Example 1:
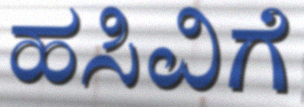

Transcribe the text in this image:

ಹಸಿವಿಗೆ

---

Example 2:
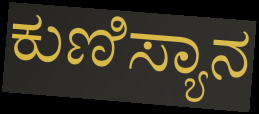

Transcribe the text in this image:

ಕುಣಿಸ್ಯಾನ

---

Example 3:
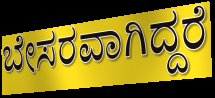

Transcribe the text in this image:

ಬೇಸರವಾಗಿದ್ದರೆ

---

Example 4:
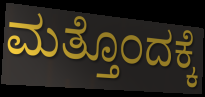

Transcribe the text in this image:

ಮತ್ತೊಂದಕ್ಕೆ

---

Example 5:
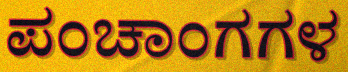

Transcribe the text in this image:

ಪಂಚಾಂಗಗಳ